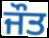
ਜੌਤ